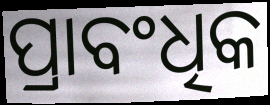
ପ୍ରାବଂଧିକ